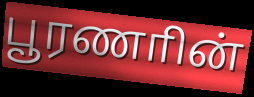
பூரணரின்